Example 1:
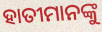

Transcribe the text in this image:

ହାତୀମାନଙ୍କୁ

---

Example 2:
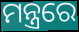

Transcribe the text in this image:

ମନ୍ତ୍ରରେ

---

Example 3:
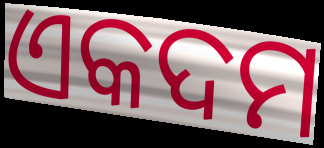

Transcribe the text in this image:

ଏକଦମ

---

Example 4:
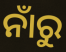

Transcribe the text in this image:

ନାଁରୁ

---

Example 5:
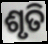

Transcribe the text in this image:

ଶୃତି